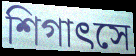
শিগাৎসে